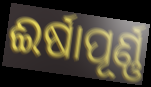
ଈର୍ଷାପୂର୍ଣ୍ଣ